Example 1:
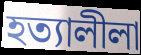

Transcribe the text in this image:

হত্যালীলা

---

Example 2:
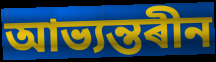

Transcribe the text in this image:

আভ্যন্তৰীন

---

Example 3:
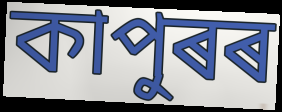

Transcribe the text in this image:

কাপুৰৰ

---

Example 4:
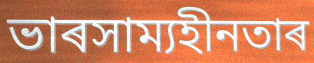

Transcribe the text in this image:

ভাৰসাম্যহীনতাৰ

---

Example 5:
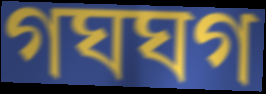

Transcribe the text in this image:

গঘঘগ